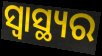
ସ୍ୱାସ୍ଥ୍ୟର